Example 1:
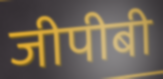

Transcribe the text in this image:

जीपीबी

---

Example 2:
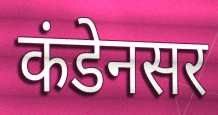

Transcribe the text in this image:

कंडेनसर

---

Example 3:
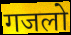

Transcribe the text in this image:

गजलो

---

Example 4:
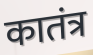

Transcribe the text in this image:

कातंत्र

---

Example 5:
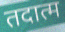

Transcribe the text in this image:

तदात्म